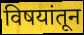
विषयांतून